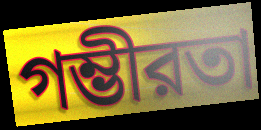
গম্ভীরতা